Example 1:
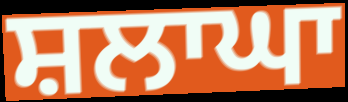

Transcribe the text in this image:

ਸ਼ਲਾਘਾ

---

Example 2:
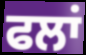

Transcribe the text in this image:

ਫਲਾਂ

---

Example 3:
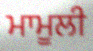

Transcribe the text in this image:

ਮਾਮੂਲੀ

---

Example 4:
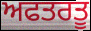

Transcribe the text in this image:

ਅਫਤਰਤੂ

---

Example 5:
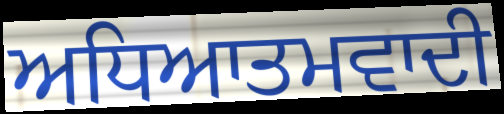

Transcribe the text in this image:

ਅਧਿਆਤਮਵਾਦੀ